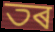
তৰ